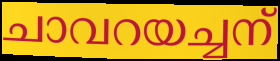
ചാവറയച്ചന്